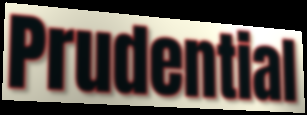
Prudential